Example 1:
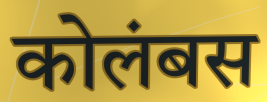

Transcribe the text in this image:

कोलंबस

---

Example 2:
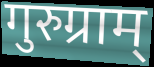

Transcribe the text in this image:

गुरुग्राम्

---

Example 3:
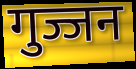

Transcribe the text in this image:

गुज्जन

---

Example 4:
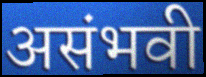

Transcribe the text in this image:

असंभवी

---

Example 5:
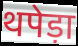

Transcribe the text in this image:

थपेड़ा